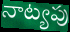
నాట్యపు